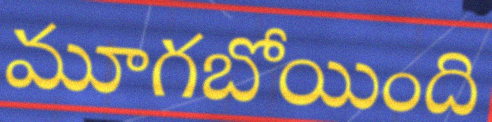
మూగబోయింది